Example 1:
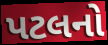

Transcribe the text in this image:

પટલનો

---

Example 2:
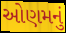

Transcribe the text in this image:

ઓણમનું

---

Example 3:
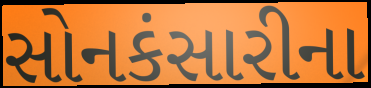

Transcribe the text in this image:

સોનકંસારીના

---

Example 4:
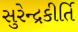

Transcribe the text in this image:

સુરેન્દ્રકીર્તિ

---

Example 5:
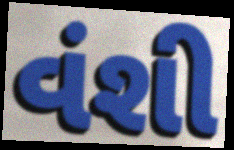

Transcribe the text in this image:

વંશી